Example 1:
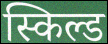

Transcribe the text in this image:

स्किल्ड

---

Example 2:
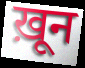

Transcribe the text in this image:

ख़ून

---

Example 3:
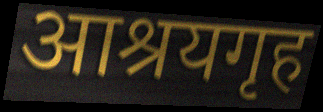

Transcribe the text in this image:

आश्रयगृह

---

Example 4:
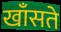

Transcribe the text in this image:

खाँसते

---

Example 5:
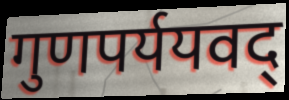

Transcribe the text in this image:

गुणपर्ययवद्